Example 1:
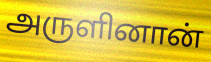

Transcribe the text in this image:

அருளினான்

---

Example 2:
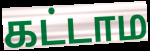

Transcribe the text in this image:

கட்டாம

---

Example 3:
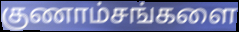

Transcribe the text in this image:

குணாம்சங்களை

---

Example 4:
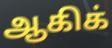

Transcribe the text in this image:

ஆகிக்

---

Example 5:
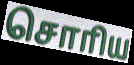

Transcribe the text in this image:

சொரிய